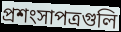
প্রশংসাপত্রগুলি